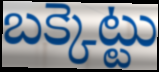
బక్కెట్టు